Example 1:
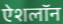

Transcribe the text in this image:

ऐशलॉन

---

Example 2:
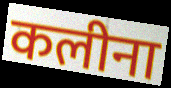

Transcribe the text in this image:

कलीना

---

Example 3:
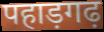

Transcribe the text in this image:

पहाड़गढ़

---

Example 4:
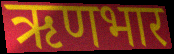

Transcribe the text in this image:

ऋणभार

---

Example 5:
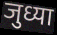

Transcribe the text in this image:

जुध्या